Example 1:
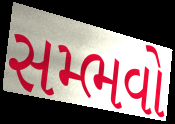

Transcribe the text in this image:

સમ્ભવો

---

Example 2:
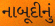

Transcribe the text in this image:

નાબૂદીનું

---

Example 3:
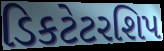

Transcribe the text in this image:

ડિકટેટરશિપ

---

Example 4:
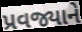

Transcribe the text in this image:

પ્રવજ્યાને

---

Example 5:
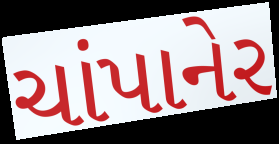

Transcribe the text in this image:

ચાંપાનેર